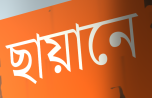
ছায়ানে